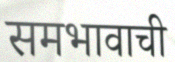
समभावाची